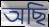
অছি